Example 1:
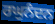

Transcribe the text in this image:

ਰਘੁਨੰਦਨ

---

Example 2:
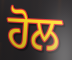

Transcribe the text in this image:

ਹੋਲ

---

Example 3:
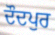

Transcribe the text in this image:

ਦੌਦਪੁਰ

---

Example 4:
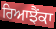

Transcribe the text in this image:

ਰਿਆਝੈਂਕਾ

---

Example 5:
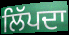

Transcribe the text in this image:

ਲਿੱਪਦਾ